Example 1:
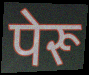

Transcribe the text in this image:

पेरू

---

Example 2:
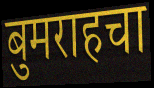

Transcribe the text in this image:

बुमराहचा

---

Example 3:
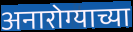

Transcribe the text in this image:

अनारोग्याच्या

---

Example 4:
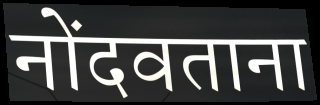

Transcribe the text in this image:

नोंदवताना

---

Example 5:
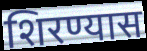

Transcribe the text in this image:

शिरण्यास